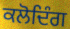
ਕਲੋਦਿੰਗ